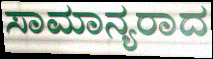
ಸಾಮಾನ್ಯರಾದ